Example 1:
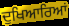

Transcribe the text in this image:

ਦੁਖਿਆਰਿਆਂ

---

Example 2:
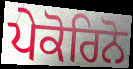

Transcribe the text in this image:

ਪੇਕੋਰਿਨੋ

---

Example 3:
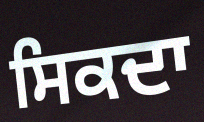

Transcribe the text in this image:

ਸਿਕਦਾ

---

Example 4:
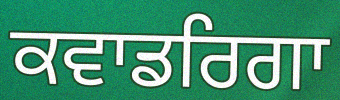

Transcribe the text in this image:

ਕਵਾਡਰਿਗਾ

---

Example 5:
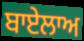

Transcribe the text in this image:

ਬਾਏਲਾਅ